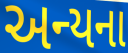
અન્યના